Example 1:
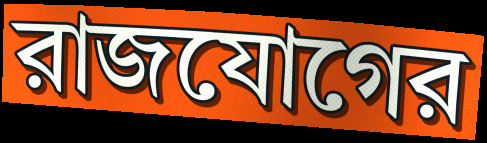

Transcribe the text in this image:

রাজযোগের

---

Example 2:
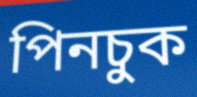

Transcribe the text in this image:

পিনচুক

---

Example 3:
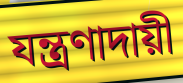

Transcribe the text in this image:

যন্ত্রণাদায়ী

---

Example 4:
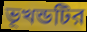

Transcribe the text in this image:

ভূখন্ডটির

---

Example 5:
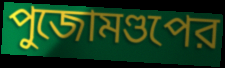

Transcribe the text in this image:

পুজোমণ্ডপের